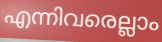
എന്നിവരെല്ലാം